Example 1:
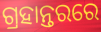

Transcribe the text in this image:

ଗ୍ରହାନ୍ତରରେ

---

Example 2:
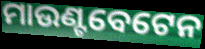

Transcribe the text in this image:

ମାଉଣ୍ଟବେଟେନ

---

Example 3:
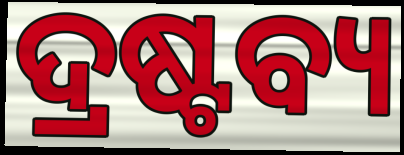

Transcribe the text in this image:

ଦ୍ରଷ୍ଟବ୍ୟ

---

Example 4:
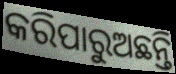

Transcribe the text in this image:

କରିପାରୁଅଛନ୍ତି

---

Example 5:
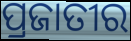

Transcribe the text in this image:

ପ୍ରଜାତୀର